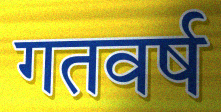
गतवर्ष